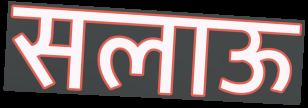
सलाऊ